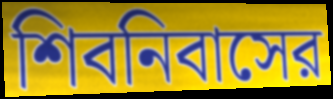
শিবনিবাসের